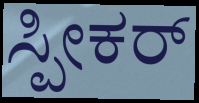
ಸ್ಪೀಕರ್